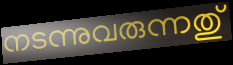
നടന്നുവരുന്നതു്